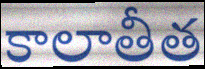
కాలాతీత